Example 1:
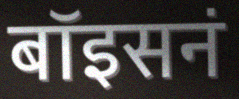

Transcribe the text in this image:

बॉइसनं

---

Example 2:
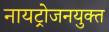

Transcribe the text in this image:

नायट्रोजनयुक्त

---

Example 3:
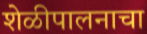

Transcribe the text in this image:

शेळीपालनाचा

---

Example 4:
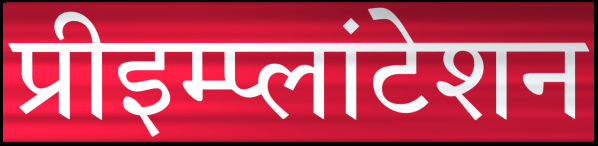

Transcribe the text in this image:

प्रीइम्प्लांटेशन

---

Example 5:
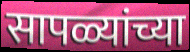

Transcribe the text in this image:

सापळ्यांच्या